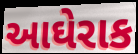
આઘેરાક